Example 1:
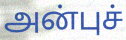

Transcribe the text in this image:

அன்புச்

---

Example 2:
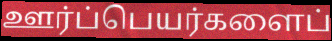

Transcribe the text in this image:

ஊர்ப்பெயர்களைப்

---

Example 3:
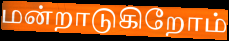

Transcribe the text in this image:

மன்றாடுகிறோம்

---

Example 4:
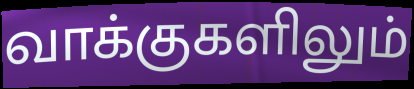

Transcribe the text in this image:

வாக்குகளிலும்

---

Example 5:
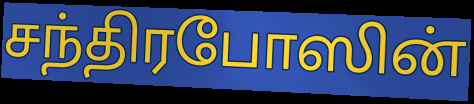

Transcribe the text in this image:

சந்திரபோஸின்